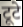
टूटे